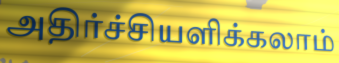
அதிர்ச்சியளிக்கலாம்